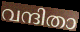
വന്ദിതാ